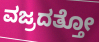
ವಜ್ರದತ್ತೋ